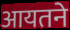
आयतने